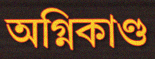
অগ্নিকাণ্ড